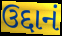
ઉદ્દાનં